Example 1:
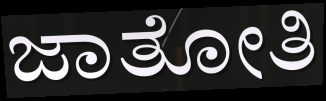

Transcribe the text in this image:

ಜಾತೋತಿ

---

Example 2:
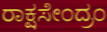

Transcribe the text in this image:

ರಾಕ್ಷಸೇಂದ್ರಂ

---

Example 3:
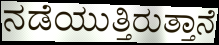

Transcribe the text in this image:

ನಡೆಯುತ್ತಿರುತ್ತಾನೆ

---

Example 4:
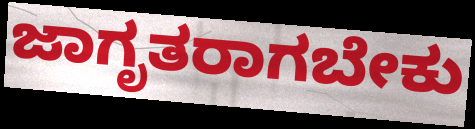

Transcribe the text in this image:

ಜಾಗೃತರಾಗಬೇಕು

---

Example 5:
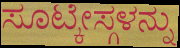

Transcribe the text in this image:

ಸೂಟ್ಕೇಸ್ಗಳನ್ನು